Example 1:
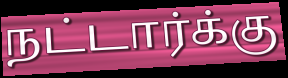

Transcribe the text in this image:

நட்டார்க்கு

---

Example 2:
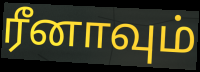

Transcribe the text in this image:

ரீனாவும்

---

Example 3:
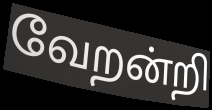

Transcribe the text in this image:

வேறன்றி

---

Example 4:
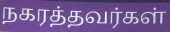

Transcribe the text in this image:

நகரத்தவர்கள்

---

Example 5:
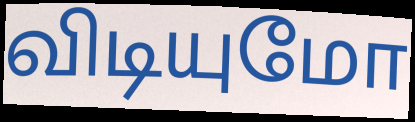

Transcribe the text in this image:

விடியுமோ